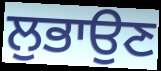
ਲੁਭਾਉਣ